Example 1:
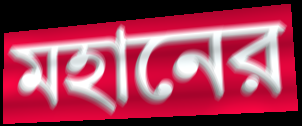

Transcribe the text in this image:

মহানের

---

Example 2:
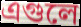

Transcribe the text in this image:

এগুলে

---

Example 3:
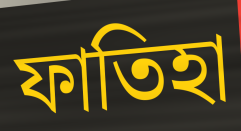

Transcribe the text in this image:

ফাতিহা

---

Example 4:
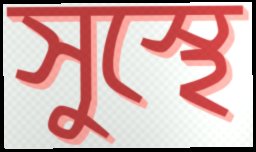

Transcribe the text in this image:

সুস্থে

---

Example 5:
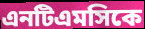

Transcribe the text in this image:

এনটিএমসিকে